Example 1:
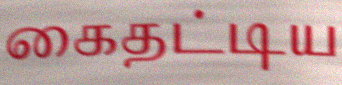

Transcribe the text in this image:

கைதட்டிய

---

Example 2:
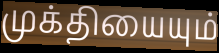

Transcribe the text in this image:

முக்தியையும்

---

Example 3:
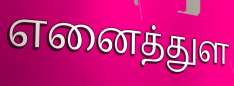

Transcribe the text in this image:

எனைத்துள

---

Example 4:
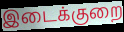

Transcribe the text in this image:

இடைக்குறை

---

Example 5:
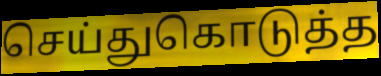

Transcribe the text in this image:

செய்துகொடுத்த